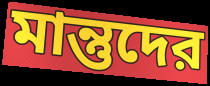
মান্তুদের